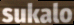
sukalo